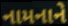
નામનાને